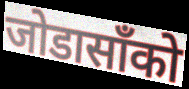
जोडासाँको